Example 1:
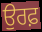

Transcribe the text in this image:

ਉਰਫ਼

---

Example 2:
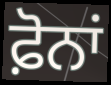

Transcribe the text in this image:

ਫ਼ੋਨਾਂ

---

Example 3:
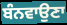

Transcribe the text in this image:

ਬੰਨਵਾਉਣਾ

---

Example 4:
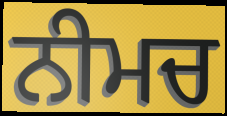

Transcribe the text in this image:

ਨੀਮਚ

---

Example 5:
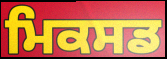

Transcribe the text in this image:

ਮਿਕਸਡ